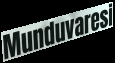
Munduvaresi